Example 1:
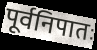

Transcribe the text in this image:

पूर्वनिपातः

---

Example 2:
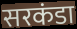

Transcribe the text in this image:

सरकंडा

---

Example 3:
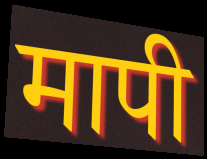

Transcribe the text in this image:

मापी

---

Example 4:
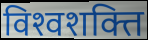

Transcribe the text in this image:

विश्वशक्ति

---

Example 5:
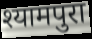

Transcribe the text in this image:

श्यामपुरा